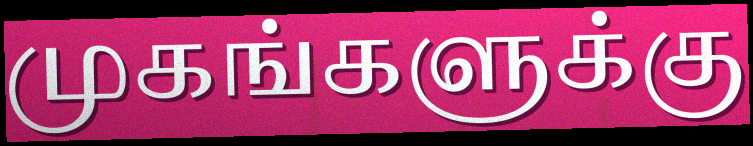
முகங்களுக்கு